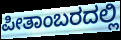
ಪೀತಾಂಬರದಲ್ಲಿ